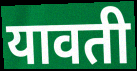
यावती